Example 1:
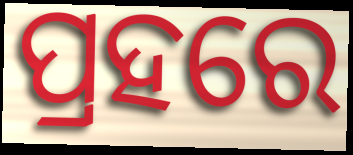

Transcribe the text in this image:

ପ୍ରହରେ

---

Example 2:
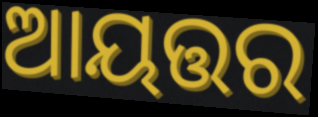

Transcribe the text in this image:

ଆୟତ୍ତର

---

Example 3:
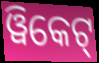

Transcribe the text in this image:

ୱିକେଟ୍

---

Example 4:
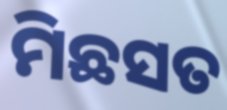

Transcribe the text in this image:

ମିଛସତ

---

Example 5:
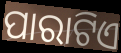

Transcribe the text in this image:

ପାରାଟିଏ